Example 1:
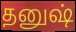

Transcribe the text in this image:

தனுஷ்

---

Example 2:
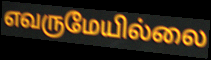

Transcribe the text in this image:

எவருமேயில்லை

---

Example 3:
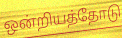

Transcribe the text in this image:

ஒன்றியத்தோடு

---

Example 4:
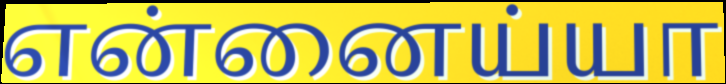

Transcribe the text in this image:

என்னைய்யா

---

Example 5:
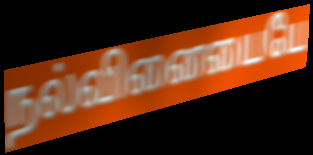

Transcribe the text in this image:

நல்வினையையே